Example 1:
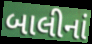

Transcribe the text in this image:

બાલીનાં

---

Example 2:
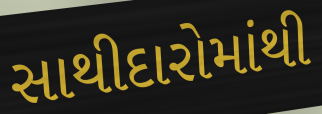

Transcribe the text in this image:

સાથીદારોમાંથી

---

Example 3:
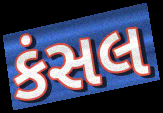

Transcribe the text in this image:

કંસલ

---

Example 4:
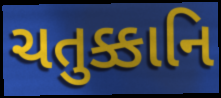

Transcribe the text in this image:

ચતુક્કાનિ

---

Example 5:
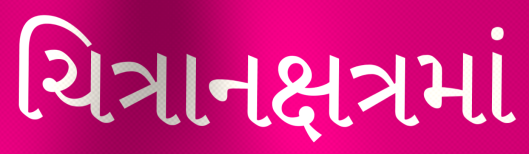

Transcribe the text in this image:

ચિત્રાનક્ષત્રમાં